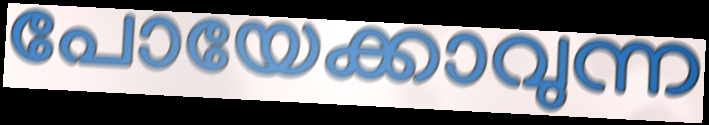
പോയേക്കാവുന്ന